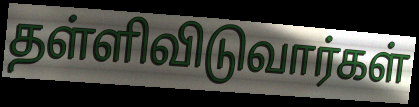
தள்ளிவிடுவார்கள்